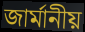
জাৰ্মানীয়